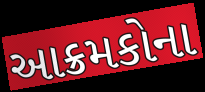
આક્રમકોના